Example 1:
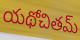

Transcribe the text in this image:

యథోచితమ్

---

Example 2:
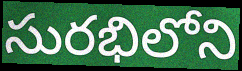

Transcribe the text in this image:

సురభిలోని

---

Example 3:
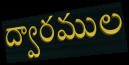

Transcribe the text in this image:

ద్వారముల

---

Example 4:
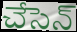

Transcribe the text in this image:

చేసెన్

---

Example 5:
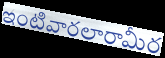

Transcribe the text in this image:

ఇంటివారలారామీర